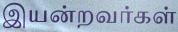
இயன்றவர்கள்